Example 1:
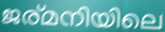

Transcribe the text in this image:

ജര്മനിയിലെ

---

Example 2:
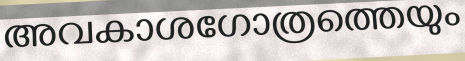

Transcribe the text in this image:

അവകാശഗോത്രത്തെയും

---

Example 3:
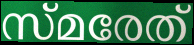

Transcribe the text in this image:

സ്മരേത്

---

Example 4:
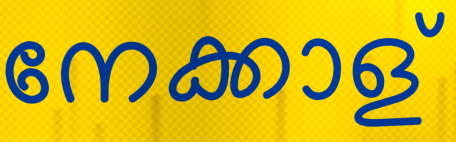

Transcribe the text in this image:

നേക്കാള്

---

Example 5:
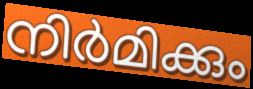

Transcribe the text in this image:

നിർമിക്കും